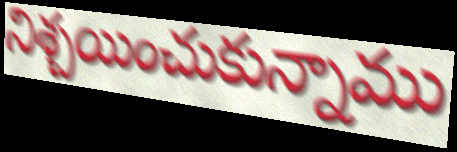
నిశ్చయించుకున్నాము